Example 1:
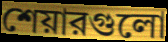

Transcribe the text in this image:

শেয়ারগুলো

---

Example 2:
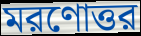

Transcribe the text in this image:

মরণোত্তর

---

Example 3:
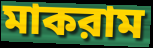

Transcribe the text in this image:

মাকরাম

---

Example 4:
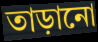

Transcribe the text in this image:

তাড়ানো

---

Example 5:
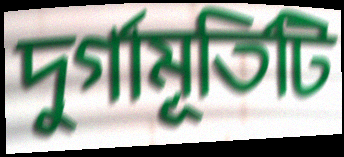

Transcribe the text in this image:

দুর্গামূর্তিটি